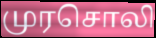
முரசொலி